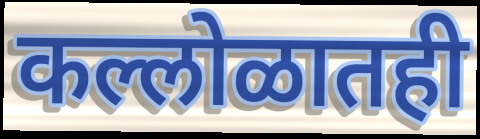
कल्लोळातही